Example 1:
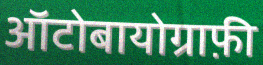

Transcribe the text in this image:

ऑटोबायोग्राफ़ी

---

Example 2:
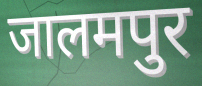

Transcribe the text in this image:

जालमपुर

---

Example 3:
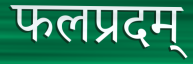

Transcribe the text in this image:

फलप्रदम्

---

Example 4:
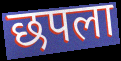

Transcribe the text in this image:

छपला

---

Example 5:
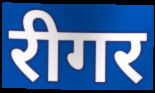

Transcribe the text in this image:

रीगर